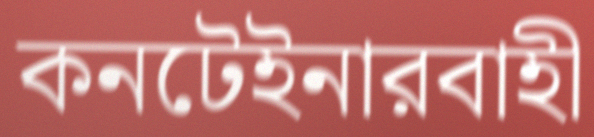
কনটেইনারবাহী